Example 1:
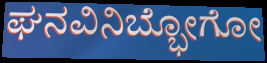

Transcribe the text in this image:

ಘನವಿನಿಬ್ಭೋಗೋ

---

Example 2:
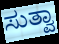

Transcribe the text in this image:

ಸುತ್ವಾ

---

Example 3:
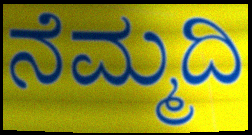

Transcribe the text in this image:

ನೆಮ್ಮದಿ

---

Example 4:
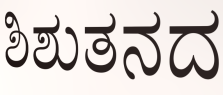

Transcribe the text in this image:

ಶಿಶುತನದ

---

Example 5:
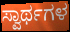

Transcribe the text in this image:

ಸ್ವಾರ್ಥಗಳ